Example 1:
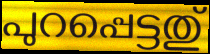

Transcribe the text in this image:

പുറപ്പെട്ടതു്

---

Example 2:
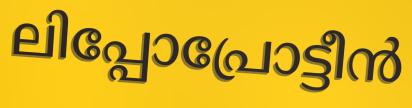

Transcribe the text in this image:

ലിപ്പോപ്രോട്ടീൻ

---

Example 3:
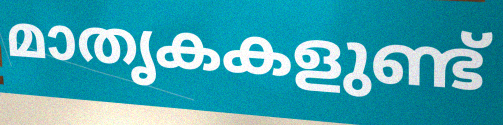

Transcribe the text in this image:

മാതൃകകളുണ്ട്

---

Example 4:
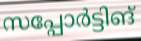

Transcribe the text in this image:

സപ്പോർട്ടിങ്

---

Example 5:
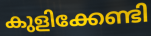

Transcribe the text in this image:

കുളിക്കേണ്ടി